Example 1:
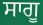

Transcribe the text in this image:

ਸਾਗੂ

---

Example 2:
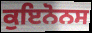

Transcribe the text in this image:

ਕੁਇਨੋਨਸ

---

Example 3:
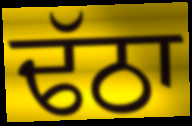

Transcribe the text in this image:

ਢੱਠਾ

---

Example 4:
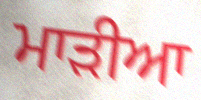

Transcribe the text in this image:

ਮਾੜੀਆ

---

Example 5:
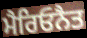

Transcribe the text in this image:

ਮੈਰਿਓਨੈਤ